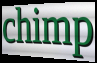
chimp